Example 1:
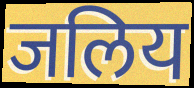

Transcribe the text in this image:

जलिय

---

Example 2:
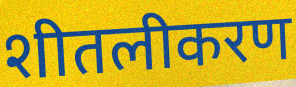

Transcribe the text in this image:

शीतलीकरण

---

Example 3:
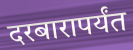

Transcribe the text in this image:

दरबारापर्यंत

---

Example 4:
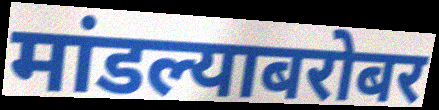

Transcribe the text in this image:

मांडल्याबरोबर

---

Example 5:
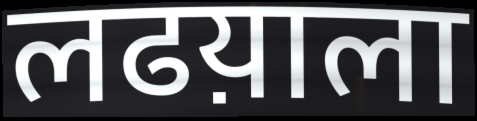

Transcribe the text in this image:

लढय़ाला